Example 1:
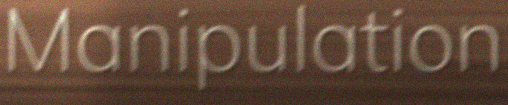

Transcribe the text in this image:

Manipulation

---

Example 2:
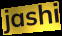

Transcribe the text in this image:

jashi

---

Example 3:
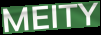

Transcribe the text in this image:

MEITY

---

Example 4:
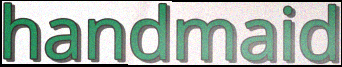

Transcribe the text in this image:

handmaid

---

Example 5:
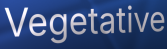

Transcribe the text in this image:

Vegetative